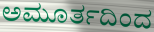
ಅಮೂರ್ತದಿಂದ